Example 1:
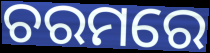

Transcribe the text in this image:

ଚରମରେ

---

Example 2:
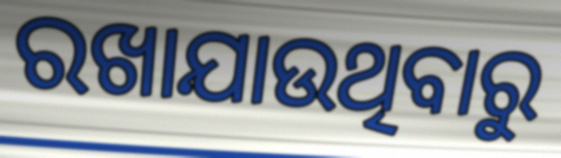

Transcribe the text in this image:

ରଖାଯାଉଥିବାରୁ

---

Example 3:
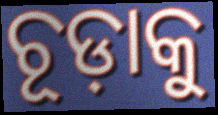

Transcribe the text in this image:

ଚୂଡ଼ାକୁ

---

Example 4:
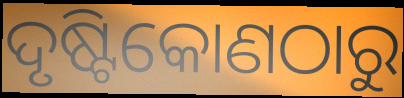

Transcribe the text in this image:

ଦୃଷ୍ଟିକୋଣଠାରୁ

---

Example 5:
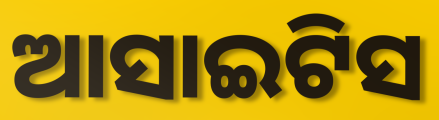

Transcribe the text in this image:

ଆସାଇଟିସ